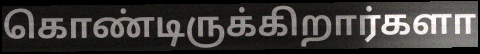
கொண்டிருக்கிறார்களா